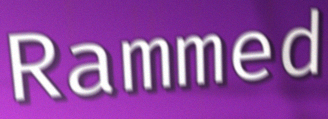
Rammed